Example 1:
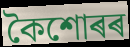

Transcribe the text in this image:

কৈশোৰৰ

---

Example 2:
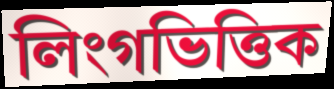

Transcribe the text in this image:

লিংগভিত্তিক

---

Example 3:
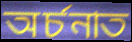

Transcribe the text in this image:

অৰ্চনাত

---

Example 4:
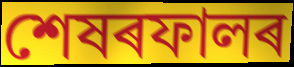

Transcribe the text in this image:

শেষৰফালৰ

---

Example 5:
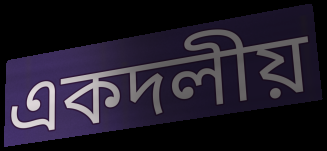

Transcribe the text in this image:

একদলীয়